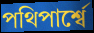
পথিপার্শ্বে